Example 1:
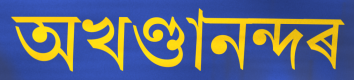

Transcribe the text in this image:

অখণ্ডানন্দৰ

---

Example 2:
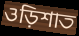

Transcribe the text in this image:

ওড়িশাত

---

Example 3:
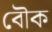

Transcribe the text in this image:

বৌক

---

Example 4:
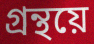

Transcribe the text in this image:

গ্ৰন্থয়ে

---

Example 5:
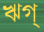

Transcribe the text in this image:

ঋগ্